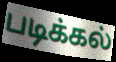
படிக்கல்